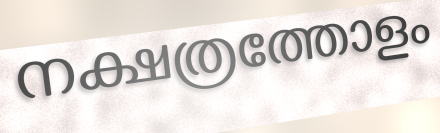
നക്ഷത്രത്തോളം